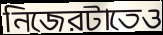
নিজেরটাতেও